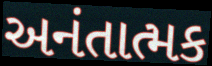
અનંતાત્મક